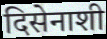
दिसेनाशी